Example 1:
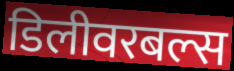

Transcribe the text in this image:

डिलीवरबल्स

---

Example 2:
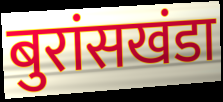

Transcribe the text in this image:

बुरांसखंडा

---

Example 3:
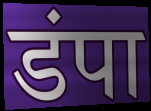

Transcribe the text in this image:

डंपा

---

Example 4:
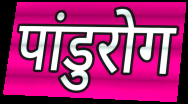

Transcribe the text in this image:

पांडुरोग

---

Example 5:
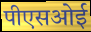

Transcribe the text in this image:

पीएसओई